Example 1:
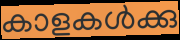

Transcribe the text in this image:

കാളകൾക്കു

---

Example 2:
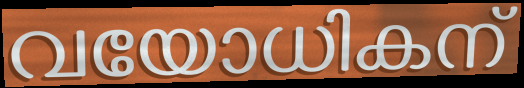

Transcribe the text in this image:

വയോധികന്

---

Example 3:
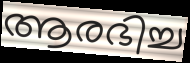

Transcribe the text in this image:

ആരഭിച്ച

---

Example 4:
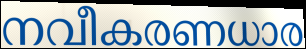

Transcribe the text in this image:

നവീകരണധാര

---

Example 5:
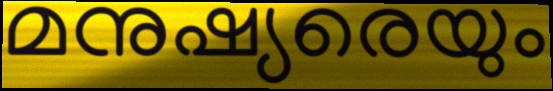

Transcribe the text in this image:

മനുഷ്യരെയും